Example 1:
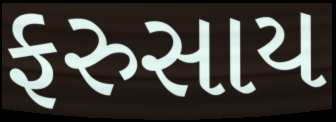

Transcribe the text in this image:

ફરુસાય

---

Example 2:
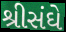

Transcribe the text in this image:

શ્રીસંઘે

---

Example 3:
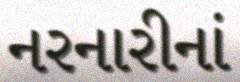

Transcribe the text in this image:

નરનારીનાં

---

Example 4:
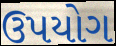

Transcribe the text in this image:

ઉપયોગ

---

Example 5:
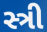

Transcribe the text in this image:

સ્ત્રી